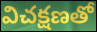
విచక్షణతో